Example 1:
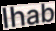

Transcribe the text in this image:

Ihab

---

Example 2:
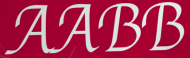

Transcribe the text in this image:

AABB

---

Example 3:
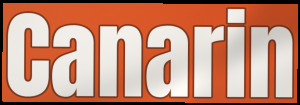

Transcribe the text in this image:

Canarin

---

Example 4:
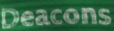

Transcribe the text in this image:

Deacons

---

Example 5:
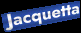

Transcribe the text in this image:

Jacquetta